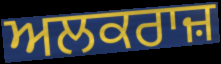
ਅਲਕਰਾਜ਼